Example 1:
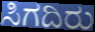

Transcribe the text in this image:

ಸಿಗದಿರು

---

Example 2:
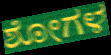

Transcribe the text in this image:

ಶೋಗಳ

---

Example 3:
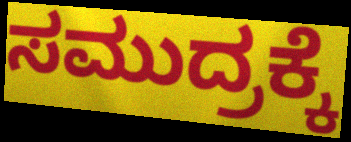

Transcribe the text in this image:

ಸಮುದ್ರಕ್ಕೆ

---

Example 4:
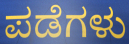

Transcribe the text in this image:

ಪಡೆಗಳು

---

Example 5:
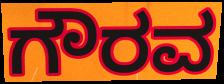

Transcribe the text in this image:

ಗೌರವ